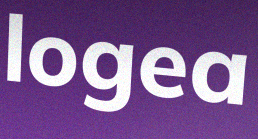
logea